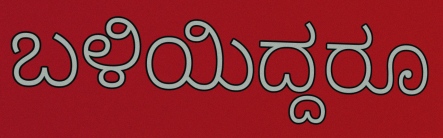
ಬಳಿಯಿದ್ದರೂ